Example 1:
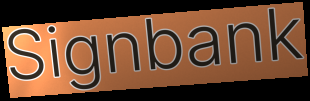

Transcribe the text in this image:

Signbank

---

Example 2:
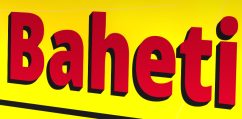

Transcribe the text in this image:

Baheti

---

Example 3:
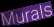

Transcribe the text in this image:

Murals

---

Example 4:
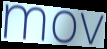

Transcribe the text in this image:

mov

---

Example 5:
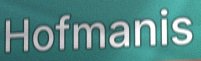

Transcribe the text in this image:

Hofmanis